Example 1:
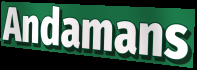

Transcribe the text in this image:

Andamans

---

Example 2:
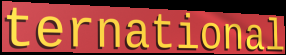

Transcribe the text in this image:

ternational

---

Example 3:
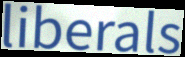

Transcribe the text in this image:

liberals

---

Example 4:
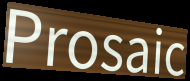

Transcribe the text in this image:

Prosaic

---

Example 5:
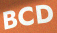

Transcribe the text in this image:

BCD